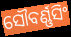
ସୌବର୍ଣ୍ଣସିଂ